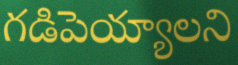
గడిపెయ్యాలని